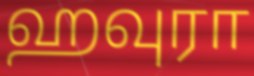
ஹவுரா